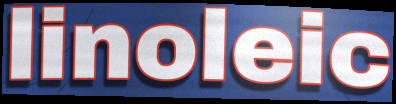
linoleic